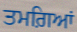
ਤਮਗ਼ਿਆਂ